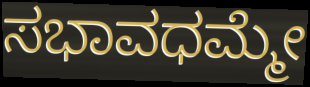
ಸಭಾವಧಮ್ಮೇ